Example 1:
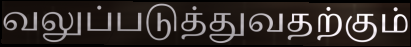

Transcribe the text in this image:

வலுப்படுத்துவதற்கும்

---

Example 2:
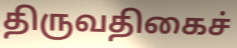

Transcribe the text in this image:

திருவதிகைச்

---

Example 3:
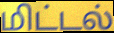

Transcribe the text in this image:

மிட்டல்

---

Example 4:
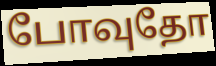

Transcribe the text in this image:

போவுதோ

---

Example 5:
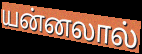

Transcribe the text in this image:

யன்னலால்